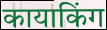
कायाकिंग